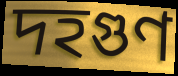
দহগুণ